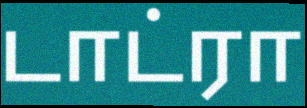
டாட்ரா